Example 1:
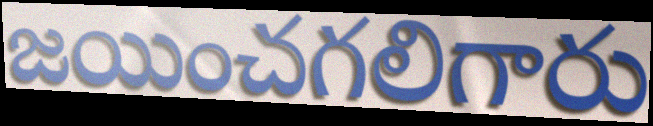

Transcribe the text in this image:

జయించగలిగారు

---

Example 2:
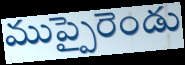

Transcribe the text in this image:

ముప్పైరెండు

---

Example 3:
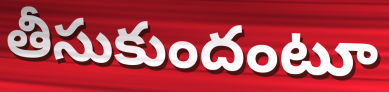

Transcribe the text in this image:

తీసుకుందంటూ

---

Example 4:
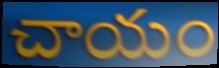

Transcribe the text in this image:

చాయం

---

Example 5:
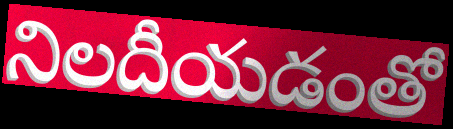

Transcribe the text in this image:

నిలదీయడంతో